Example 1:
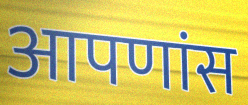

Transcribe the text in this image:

आपणांस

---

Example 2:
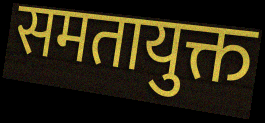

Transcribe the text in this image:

समतायुक्त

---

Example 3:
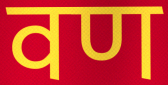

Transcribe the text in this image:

वण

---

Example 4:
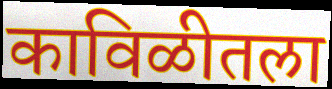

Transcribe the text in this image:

काविळीतला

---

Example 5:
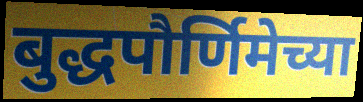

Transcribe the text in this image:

बुद्धपौर्णिमेच्या